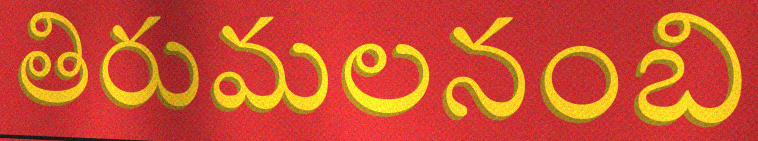
తిరుమలనంబి